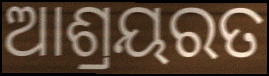
ଆଶ୍ରୟରତ